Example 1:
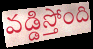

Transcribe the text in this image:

వడ్డిస్తోంది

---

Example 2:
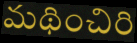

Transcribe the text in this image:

మథించిరి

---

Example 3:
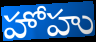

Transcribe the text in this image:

హోహు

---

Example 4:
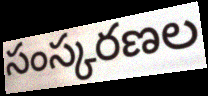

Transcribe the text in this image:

సంస్కరణల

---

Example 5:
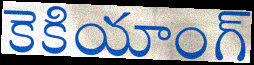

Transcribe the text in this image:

కెకియాంగ్